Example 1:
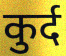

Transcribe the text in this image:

कुर्द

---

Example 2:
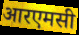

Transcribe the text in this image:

आरएमसी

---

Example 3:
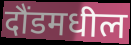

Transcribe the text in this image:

दौंडमधील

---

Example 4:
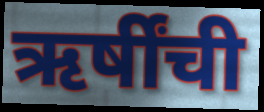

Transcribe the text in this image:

ऋर्षींची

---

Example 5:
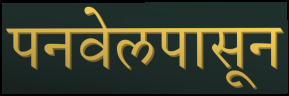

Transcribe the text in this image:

पनवेलपासून